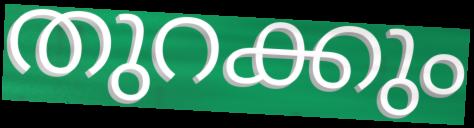
തുറക്കും